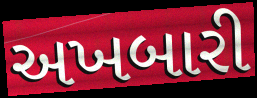
અખબારી